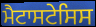
ਮੈਟਾਸਟੇਸਿਸ